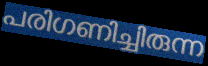
പരിഗണിച്ചിരുന്ന